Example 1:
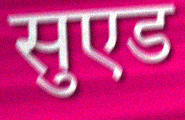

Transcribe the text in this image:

सुएड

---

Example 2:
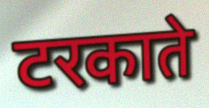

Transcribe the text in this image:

टरकाते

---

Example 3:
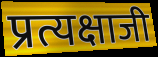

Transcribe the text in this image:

प्रत्यक्षाजी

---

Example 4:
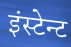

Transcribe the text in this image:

इंस्टेन्ट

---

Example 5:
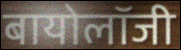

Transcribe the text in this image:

बायोलॉजी